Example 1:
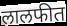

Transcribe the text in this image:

लालफीत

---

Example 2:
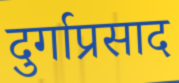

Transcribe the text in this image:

दुर्गाप्रसाद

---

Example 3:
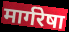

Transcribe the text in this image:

मार्गरेषा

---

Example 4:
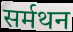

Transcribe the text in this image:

सर्मथन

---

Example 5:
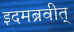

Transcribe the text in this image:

इदमब्रवीत्